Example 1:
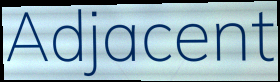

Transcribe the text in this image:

Adjacent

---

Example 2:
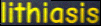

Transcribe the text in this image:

lithiasis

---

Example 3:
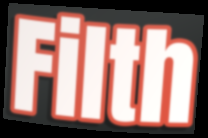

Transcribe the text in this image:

Filth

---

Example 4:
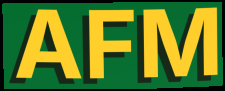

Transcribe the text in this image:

AFM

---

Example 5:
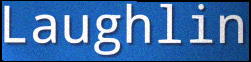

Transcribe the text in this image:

Laughlin